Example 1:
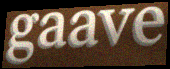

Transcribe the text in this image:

gaave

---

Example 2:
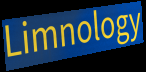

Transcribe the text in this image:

Limnology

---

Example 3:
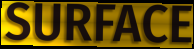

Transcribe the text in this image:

SURFACE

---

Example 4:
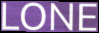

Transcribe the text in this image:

LONE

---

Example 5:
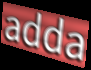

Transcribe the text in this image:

adda